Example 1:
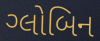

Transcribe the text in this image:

ગ્લોબિન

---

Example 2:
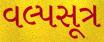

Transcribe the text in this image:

વલ્પસૂત્ર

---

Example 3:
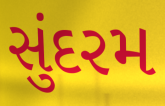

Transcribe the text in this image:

સુંદરમ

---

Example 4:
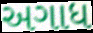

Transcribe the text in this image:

અગાધ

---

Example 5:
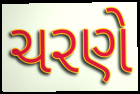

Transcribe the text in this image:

ચરણે